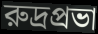
রুদ্রপ্রভা